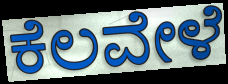
ಕೆಲವೇಳೆ